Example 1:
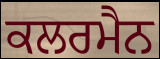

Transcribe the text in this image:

ਕਲਰਮੈਨ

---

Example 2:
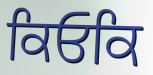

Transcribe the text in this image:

ਕਿਓਕਿ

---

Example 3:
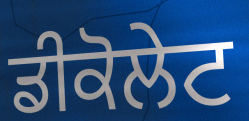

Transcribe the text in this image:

ਡੀਕੋਲੇਟ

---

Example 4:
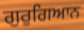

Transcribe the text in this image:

ਗੁਰੁਗਿਆਨ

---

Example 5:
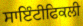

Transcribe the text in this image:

ਸਾਇੰਟੀਫਿਕਲੀ